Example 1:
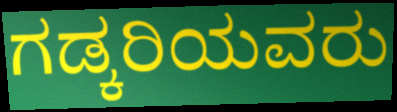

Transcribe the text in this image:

ಗಡ್ಕರಿಯವರು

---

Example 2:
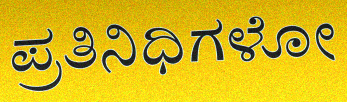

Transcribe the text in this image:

ಪ್ರತಿನಿಧಿಗಳೋ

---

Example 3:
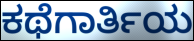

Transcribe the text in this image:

ಕಥೆಗಾರ್ತಿಯ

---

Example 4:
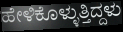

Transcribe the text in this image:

ಹೇಳಿಕೊಳ್ಳುತ್ತಿದ್ದಳು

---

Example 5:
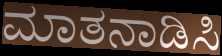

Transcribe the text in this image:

ಮಾತನಾಡಿಸಿ